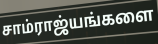
சாம்ராஜ்யங்களை